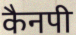
कैनपी